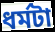
ধর্মটা